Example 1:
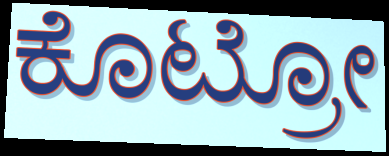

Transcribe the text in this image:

ಕೊಟ್ರೋ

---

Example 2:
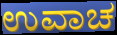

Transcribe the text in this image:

ಉವಾಚ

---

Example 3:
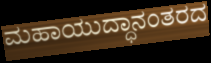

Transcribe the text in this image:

ಮಹಾಯುದ್ಧಾನಂತರದ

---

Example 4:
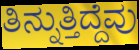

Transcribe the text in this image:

ತಿನ್ನುತ್ತಿದ್ದೆವು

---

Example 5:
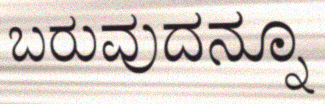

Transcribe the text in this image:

ಬರುವುದನ್ನೂ